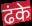
ढंके